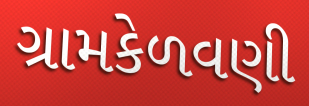
ગ્રામકેળવણી